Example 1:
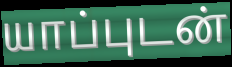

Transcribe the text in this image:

யாப்புடன்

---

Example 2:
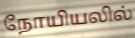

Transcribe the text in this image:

நோயியலில்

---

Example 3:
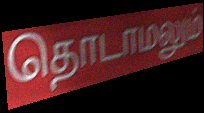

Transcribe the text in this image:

தொடாமலும்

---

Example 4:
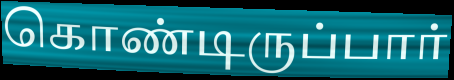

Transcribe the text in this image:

கொண்டிருப்பார்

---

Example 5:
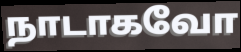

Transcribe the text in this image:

நாடாகவோ